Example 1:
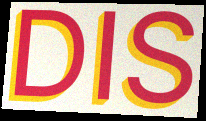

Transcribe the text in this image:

DIS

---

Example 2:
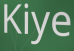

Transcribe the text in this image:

Kiye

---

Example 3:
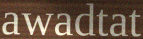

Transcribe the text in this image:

awadtat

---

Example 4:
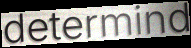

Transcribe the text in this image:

determind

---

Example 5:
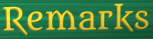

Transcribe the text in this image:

Remarks